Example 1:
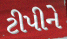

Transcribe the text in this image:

ટીપીને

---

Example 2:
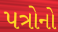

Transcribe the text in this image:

પત્રોનો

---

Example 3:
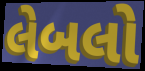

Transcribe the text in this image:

લેબલો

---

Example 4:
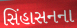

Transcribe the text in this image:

સિંહાસનના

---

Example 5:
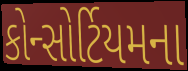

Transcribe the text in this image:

કોન્સોર્ટિયમના